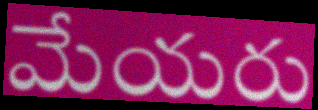
మేయరు